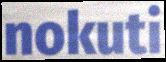
nokuti